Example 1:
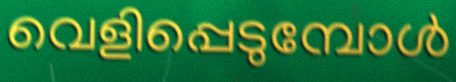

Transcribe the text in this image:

വെളിപ്പെടുമ്പോൾ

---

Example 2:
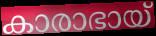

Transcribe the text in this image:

കാരാഭായ്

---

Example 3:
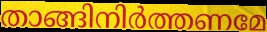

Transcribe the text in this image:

താങ്ങിനിർത്തണമേ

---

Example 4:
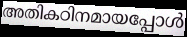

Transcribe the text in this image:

അതികഠിനമായപ്പോൾ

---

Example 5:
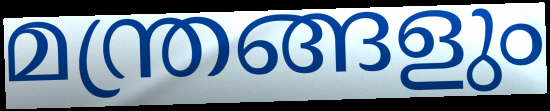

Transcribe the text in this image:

മന്ത്രങ്ങളും